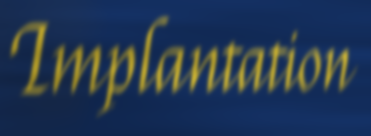
Implantation